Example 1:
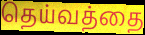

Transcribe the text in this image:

தெய்வத்தை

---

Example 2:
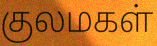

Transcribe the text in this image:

குலமகள்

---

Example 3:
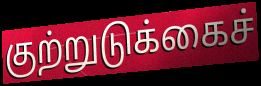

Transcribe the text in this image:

குற்றுடுக்கைச்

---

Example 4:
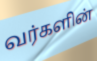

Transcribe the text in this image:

வர்களின்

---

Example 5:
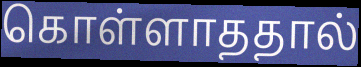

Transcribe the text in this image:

கொள்ளாததால்